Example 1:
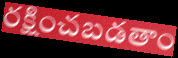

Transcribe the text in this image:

రక్షించబడతాం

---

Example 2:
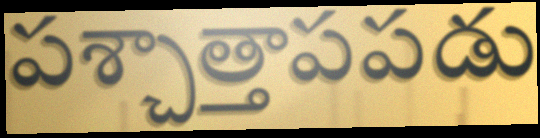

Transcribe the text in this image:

పశ్చాత్తాపపడు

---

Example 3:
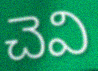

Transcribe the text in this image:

చెవి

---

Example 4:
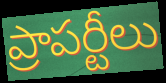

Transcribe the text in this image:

ప్రాపర్టీలు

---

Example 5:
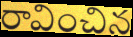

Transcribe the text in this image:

రావించిన